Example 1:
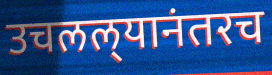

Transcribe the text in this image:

उचलल्यानंतरच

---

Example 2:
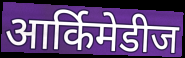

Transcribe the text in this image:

आर्किमेडीज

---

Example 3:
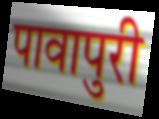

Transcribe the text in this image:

पावापुरी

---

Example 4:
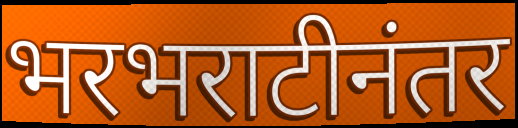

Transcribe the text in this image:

भरभराटीनंतर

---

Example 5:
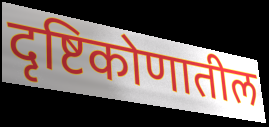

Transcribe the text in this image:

दृष्टिकोणातील